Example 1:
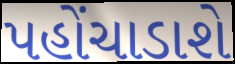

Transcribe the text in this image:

પહોંચાડાશે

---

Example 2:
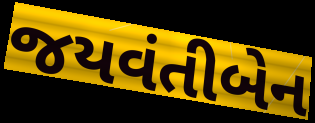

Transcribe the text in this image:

જયવંતીબેન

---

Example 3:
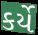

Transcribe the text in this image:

કર્યે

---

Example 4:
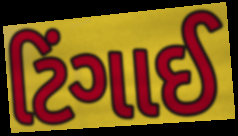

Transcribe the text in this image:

ટિંગાઈ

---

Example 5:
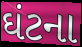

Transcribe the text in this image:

ઘંટના